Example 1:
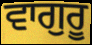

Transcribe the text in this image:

ਵਾਗੁਰੂ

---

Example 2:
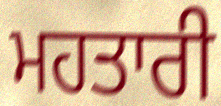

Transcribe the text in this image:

ਮਹਤਾਰੀ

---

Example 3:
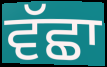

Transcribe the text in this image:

ਵੱਛਾ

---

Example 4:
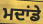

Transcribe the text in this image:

ਮਦਾਂਡੇ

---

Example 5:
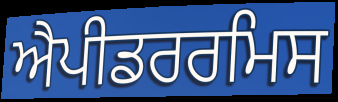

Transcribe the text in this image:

ਐਪੀਡਰਰਮਿਸ